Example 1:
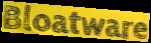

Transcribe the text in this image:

Bloatware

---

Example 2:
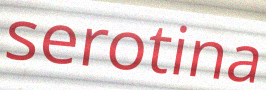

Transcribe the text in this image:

serotina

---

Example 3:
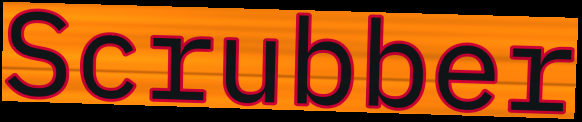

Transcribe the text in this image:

Scrubber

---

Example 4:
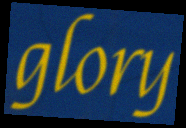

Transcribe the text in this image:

glory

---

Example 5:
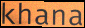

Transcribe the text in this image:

khana